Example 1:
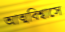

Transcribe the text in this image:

আত্মবিশ্বাসে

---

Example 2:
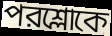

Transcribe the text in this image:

পরশ্লোকে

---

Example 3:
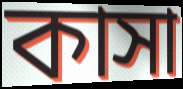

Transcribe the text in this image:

কাসা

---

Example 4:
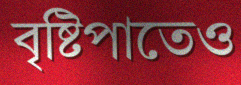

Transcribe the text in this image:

বৃষ্টিপাতেও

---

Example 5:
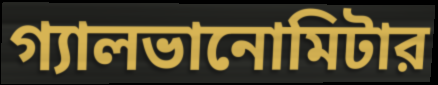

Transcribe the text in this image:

গ্যালভানোমিটার